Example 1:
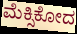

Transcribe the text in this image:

ಮೆಕ್ಸಿಕೋದ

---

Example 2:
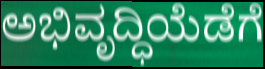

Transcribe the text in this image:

ಅಭಿವೃದ್ಧಿಯೆಡೆಗೆ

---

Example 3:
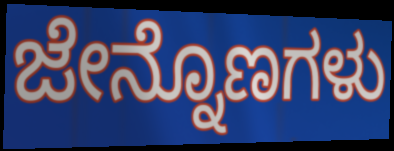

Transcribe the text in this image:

ಜೇನ್ನೊಣಗಳು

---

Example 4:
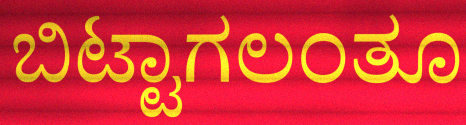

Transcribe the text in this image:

ಬಿಟ್ಟಾಗಲಂತೂ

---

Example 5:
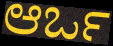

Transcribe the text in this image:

ಆರ್ಒ